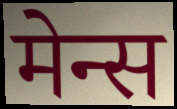
मेन्स